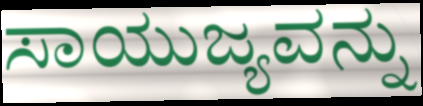
ಸಾಯುಜ್ಯವನ್ನು